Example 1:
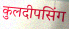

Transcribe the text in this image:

कुलदीपसिंग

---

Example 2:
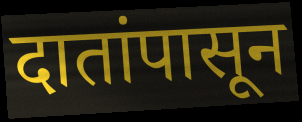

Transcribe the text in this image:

दातांपासून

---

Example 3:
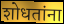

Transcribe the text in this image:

शोधतांना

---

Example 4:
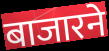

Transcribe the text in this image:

बाजारने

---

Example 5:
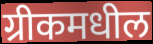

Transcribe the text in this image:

ग्रीकमधील